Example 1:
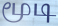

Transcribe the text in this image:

மூடி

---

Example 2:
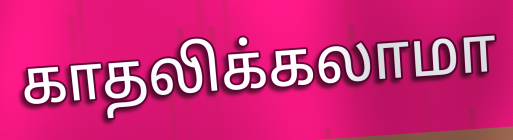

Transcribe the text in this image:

காதலிக்கலாமா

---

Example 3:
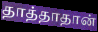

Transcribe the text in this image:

தாத்தாதான்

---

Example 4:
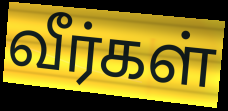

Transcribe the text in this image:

வீர்கள்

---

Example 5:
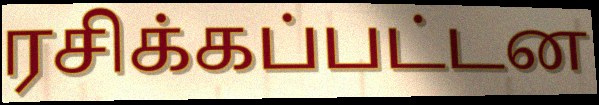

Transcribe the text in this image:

ரசிக்கப்பட்டன